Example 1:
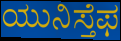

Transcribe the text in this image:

ಯುನಿಸ್ತೆಫ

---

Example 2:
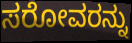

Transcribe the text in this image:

ಸರೋವರನ್ನು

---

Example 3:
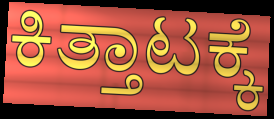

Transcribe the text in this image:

ಕಿತ್ತಾಟಕ್ಕೆ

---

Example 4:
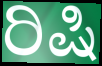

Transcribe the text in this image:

ರಿಷಿ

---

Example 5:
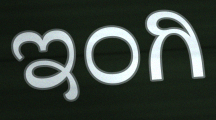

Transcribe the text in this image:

ಇಂಗಿ